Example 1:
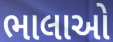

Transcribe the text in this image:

ભાલાઓ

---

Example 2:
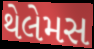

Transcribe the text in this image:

થેલેમસ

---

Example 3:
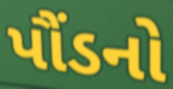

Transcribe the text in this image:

પૌંડનો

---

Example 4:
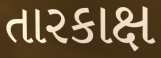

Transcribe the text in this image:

તારકાક્ષ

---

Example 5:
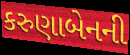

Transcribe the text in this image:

કરુણાબેનની